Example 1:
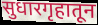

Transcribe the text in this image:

सुधारगृहातून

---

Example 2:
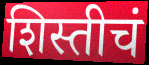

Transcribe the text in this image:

शिस्तीचं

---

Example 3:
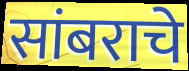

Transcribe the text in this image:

सांबराचे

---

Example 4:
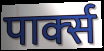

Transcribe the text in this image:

पार्क्‍स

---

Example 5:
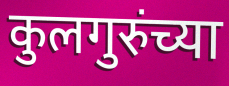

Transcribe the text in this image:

कुलगुरुंच्या